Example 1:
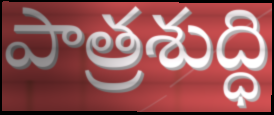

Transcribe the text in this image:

పాత్రశుద్ధి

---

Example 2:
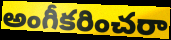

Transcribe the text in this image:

అంగీకరించరా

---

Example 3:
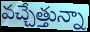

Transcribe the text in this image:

వచ్చేత్తున్నా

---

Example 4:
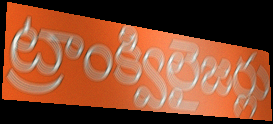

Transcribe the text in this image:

ట్రాంక్విలైజర్లు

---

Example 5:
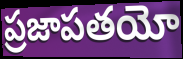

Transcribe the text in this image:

ప్రజాపతయో